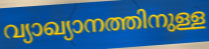
വ്യാഖ്യാനത്തിനുള്ള